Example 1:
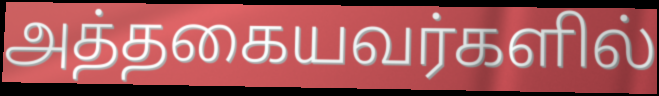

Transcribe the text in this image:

அத்தகையவர்களில்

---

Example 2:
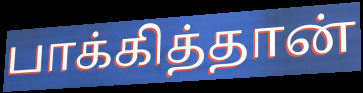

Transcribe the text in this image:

பாக்கித்தான்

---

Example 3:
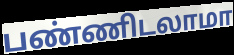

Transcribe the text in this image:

பண்ணிடலாமா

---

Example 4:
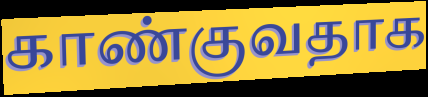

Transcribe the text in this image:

காண்குவதாக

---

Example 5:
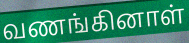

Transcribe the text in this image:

வணங்கினாள்